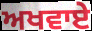
ਅਖਵਾਏ